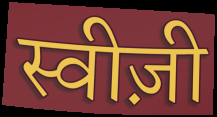
स्वीज़ी